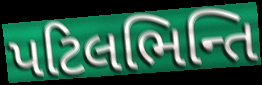
પટિલભિન્તિ